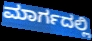
ಮಾರ್ಗದಲ್ಲಿ